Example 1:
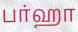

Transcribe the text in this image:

பர்ஹா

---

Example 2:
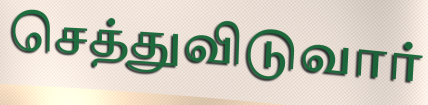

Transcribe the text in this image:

செத்துவிடுவார்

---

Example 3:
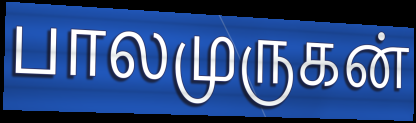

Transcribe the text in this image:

பாலமுருகன்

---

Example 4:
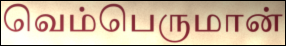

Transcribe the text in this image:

வெம்பெருமான்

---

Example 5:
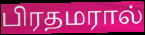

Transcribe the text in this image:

பிரதமரால்